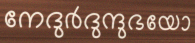
നേദുർദുന്ദുഭയോ